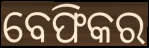
ବେଫିକର